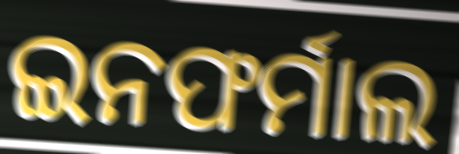
ଇନଫର୍ମାଲ